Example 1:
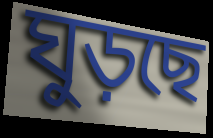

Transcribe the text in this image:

ঘুড়ছে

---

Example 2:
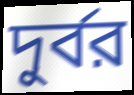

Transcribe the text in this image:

দুর্বর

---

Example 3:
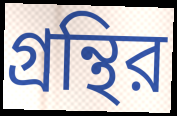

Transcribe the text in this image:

গ্রন্থির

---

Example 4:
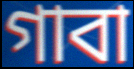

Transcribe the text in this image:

গাবা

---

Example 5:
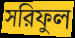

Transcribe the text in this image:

সরিফুল